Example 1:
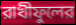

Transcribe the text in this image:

রাখীফুলের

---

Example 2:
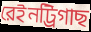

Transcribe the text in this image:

রেইনট্রিগাছ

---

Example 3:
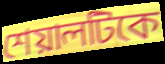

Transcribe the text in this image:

শেয়ালটিকে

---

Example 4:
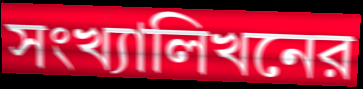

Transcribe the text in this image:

সংখ্যালিখনের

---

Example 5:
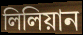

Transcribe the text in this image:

লিলিয়ান